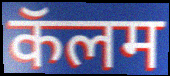
कॅलम